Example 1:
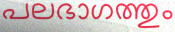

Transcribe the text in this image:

പലഭാഗത്തും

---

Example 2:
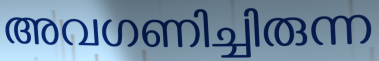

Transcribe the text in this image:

അവഗണിച്ചിരുന്ന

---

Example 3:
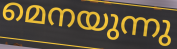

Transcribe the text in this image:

മെനയുന്നു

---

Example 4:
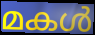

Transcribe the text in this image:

മകൾ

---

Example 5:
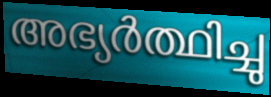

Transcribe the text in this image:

അഭ്യർത്ഥിച്ചു